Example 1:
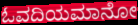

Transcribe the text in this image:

ಓವದಿಯಮಾನೋ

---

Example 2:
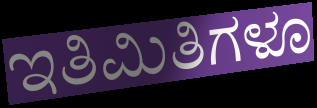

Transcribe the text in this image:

ಇತಿಮಿತಿಗಳೂ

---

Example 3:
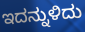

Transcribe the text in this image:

ಇದನ್ನುಳಿದು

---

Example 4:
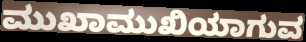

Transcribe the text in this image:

ಮುಖಾಮುಖಿಯಾಗುವ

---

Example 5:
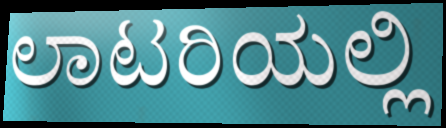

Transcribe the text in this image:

ಲಾಟರಿಯಲ್ಲಿ